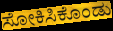
ಸೋಕಿಸಿಕೊಂಡು